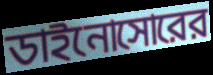
ডাইনোসোরের